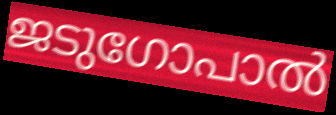
ജടുഗോപാൽ